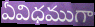
ఏవిధముగా